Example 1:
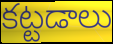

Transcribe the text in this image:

కట్టడాలు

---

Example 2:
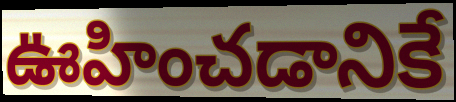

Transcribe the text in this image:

ఊహించడానికే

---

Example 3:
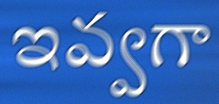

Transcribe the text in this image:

ఇవ్వగా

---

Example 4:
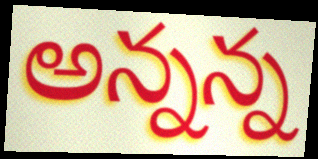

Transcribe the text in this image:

అన్నన్న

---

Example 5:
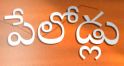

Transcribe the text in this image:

పేలోడ్లు